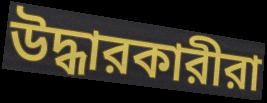
উদ্ধারকারীরা